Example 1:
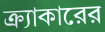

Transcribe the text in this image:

ক্র্যাকারের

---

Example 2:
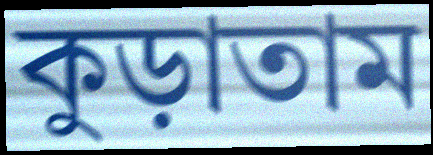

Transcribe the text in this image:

কুড়াতাম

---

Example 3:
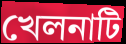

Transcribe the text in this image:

খেলনাটি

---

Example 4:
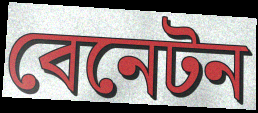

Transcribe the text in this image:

বেনেটন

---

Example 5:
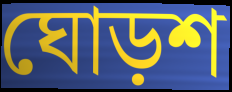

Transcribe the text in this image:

ঘোড়শ